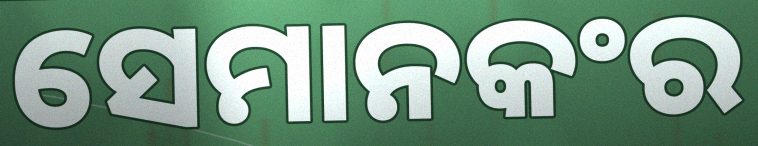
ସେମାନକଂର